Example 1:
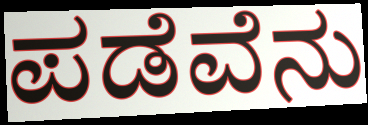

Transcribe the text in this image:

ಪಡೆವೆನು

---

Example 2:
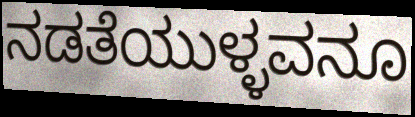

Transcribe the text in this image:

ನಡತೆಯುಳ್ಳವನೂ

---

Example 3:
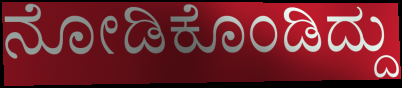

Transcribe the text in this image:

ನೋಡಿಕೊಂಡಿದ್ದು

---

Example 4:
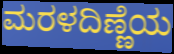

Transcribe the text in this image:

ಮರಳದಿಣ್ಣೆಯ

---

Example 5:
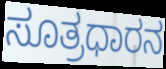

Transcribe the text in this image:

ಸೂತ್ರಧಾರನ